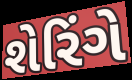
શેરિંગે